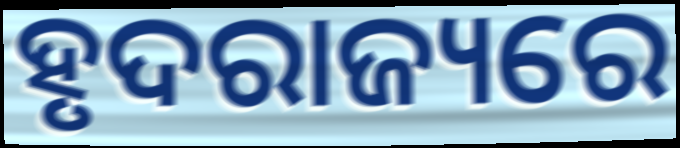
ହୃଦରାଜ୍ୟରେ